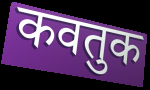
कवतुक